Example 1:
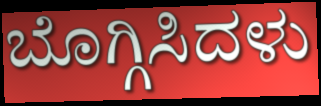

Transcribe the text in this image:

ಬೊಗ್ಗಿಸಿದಳು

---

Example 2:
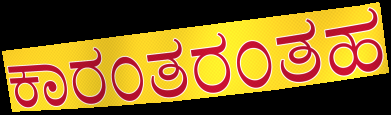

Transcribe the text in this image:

ಕಾರಂತರಂತಹ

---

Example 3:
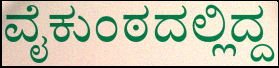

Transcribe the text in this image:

ವೈಕುಂಠದಲ್ಲಿದ್ದ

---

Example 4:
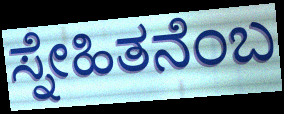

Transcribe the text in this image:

ಸ್ನೇಹಿತನೆಂಬ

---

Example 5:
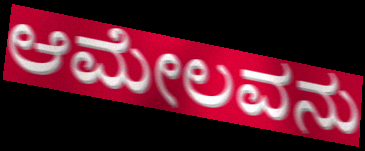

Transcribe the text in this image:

ಆಮೇಲವನು